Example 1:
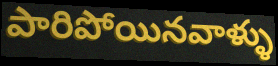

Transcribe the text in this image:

పారిపోయినవాళ్ళు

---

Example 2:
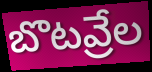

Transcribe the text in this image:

బొటవ్రేల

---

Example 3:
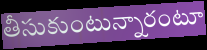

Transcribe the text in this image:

తీసుకుంటున్నారంటూ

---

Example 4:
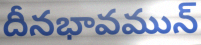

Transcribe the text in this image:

దీనభావమున్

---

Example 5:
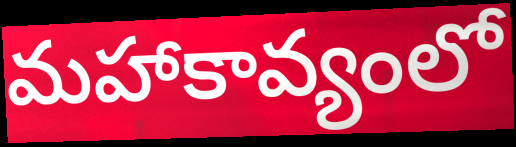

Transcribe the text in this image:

మహాకావ్యంలో